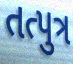
તત્પુત્ર